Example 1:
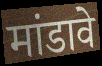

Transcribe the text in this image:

मांडावे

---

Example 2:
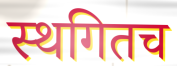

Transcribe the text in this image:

स्थगितच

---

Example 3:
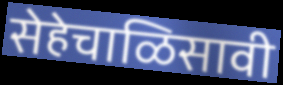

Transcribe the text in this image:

सेहेचाळिसावी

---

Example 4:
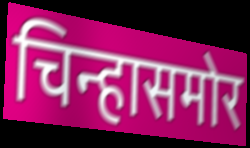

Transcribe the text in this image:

चिन्हासमोर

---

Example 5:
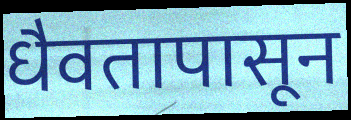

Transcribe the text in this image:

धैवतापासून